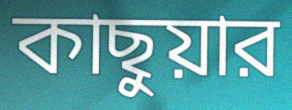
কাছুয়ার